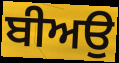
ਬੀਅਉ